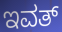
ಇವತ್